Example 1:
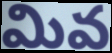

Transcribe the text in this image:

మివ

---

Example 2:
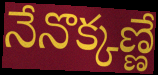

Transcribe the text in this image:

నేనొక్కణ్ణే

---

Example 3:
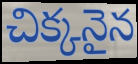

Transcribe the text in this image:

చిక్కనైన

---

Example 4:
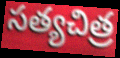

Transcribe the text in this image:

సత్యచిత్ర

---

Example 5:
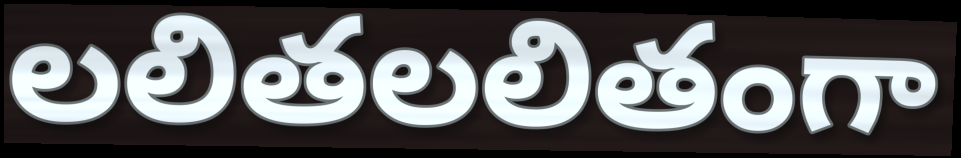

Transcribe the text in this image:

లలితలలితంగా